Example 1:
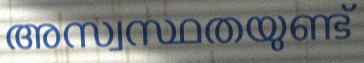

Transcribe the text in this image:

അസ്വസ്ഥതയുണ്ട്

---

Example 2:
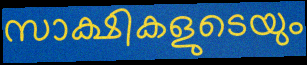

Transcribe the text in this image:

സാക്ഷികളുടെയും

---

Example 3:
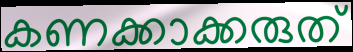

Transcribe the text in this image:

കണക്കാക്കരുത്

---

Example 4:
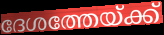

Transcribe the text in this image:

ദേശത്തേയ്ക്ക്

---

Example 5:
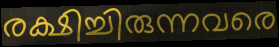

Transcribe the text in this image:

രക്ഷിച്ചിരുന്നവരെ